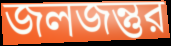
জলজন্তুর